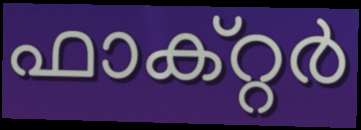
ഫാക്റ്റർ